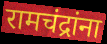
रामचंद्रांना